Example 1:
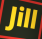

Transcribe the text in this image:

Jill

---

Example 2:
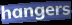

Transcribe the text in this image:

hangers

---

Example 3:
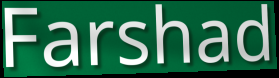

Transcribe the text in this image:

Farshad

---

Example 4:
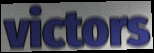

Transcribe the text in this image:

victors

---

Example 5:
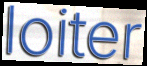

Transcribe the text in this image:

loiter